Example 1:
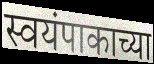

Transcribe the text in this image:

स्वयंपाकाच्या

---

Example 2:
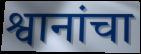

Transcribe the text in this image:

श्वानांचा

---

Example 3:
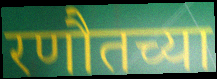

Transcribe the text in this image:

रणौतच्या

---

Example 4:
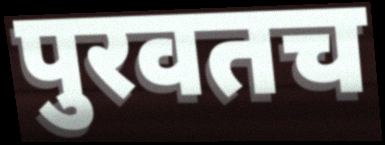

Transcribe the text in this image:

पुरवतच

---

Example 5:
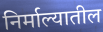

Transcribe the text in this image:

निर्माल्यातील